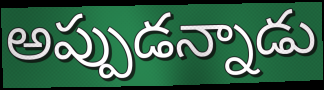
అప్పుడన్నాడు